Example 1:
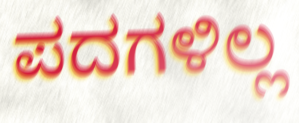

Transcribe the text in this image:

ಪದಗಳಿಲ್ಲ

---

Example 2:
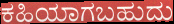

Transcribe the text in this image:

ಕಹಿಯಾಗಬಹುದು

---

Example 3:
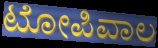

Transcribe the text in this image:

ಟೋಪಿವಾಲ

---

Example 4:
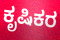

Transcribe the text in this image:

ಕೃಷಿಕರ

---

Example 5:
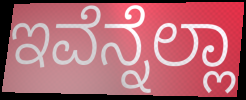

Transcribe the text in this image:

ಇವೆನ್ನೆಲ್ಲಾ